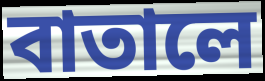
বাতালে